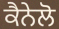
ਕੈਨੇਲੋ